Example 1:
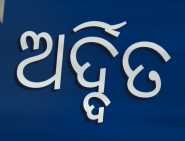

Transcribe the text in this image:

ଅର୍ଦ୍ଦିତ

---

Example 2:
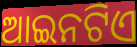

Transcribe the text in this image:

ଆଇନଟିଏ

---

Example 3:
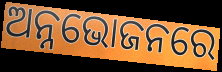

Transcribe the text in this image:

ଅନ୍ନଭୋଜନରେ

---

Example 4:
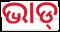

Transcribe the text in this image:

ଭାଡ୍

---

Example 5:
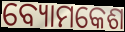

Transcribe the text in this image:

ବ୍ୟୋମକେଶ